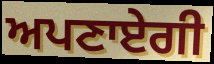
ਅਪਣਾਏਗੀ